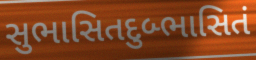
સુભાસિતદુબ્ભાસિતં